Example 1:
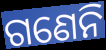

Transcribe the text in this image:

ଗଣେନି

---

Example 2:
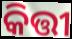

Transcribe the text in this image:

କିତ୍ତୀ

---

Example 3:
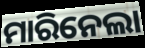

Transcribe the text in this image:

ମାରିନେଲା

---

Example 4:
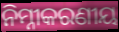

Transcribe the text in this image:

ନିମ୍ନୀକରଣୀୟ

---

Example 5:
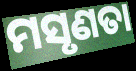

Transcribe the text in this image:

ମସୃଣତା